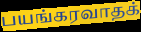
பயங்கரவாதக்